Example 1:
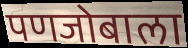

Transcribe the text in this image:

पणजोबाला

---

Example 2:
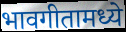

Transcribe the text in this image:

भावगीतामध्ये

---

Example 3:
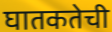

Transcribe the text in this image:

घातकतेची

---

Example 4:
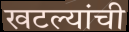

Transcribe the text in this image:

खटल्यांची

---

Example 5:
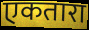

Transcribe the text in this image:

एकतारा